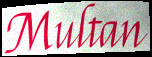
Multan